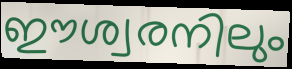
ഈശ്വരനിലും